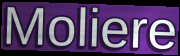
Moliere